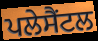
ਪਲੇਸੈਂਟਲ